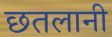
छतलानी